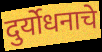
दुर्योधनाचे